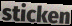
sticken